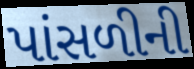
પાંસળીની